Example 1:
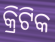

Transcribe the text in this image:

କ୍ରିଟିକ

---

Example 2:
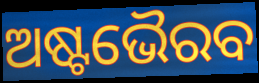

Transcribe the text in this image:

ଅଷ୍ଟଭୈରବ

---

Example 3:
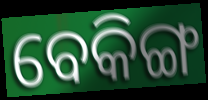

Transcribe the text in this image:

ବେକିଙ୍ଗ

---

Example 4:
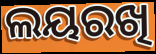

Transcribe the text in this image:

ଲୟରଖି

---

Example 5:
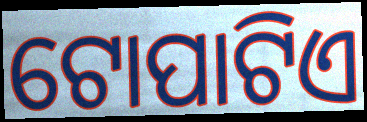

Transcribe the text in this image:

ଟୋପାଟିଏ